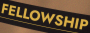
FELLOWSHIP